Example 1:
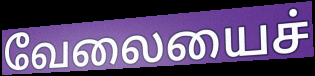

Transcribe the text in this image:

வேலையைச்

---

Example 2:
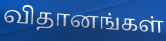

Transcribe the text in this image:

விதானங்கள்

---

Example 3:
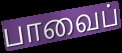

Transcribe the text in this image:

பாவைப்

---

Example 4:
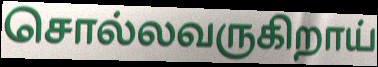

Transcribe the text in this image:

சொல்லவருகிறாய்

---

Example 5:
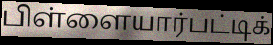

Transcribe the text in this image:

பிள்ளையார்பட்டிக்